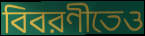
বিবরণীতেও